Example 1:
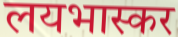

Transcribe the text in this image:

लयभास्कर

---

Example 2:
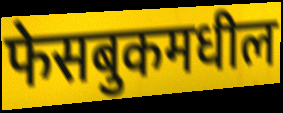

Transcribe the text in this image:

फेसबुकमधील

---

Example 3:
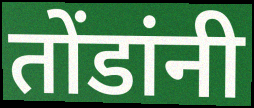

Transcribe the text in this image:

तोंडांनी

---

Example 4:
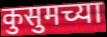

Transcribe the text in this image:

कुसुमच्या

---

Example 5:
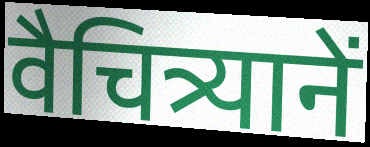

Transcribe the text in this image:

वैचित्र्यानें